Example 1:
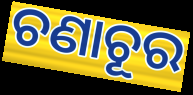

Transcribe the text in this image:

ଚଣାଚୂର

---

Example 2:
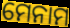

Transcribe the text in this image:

ମେନାମ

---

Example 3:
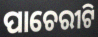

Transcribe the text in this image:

ପାଚେରୀଟି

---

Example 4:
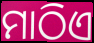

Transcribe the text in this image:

ମାଠିଏ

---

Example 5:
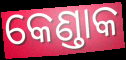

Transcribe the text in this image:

କେଣ୍ଡାକ